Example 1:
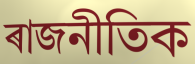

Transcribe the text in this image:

ৰাজনীতিক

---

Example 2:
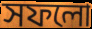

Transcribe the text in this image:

সফলো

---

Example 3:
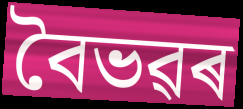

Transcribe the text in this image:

বৈভৱৰ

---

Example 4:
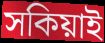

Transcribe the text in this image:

সকিয়াই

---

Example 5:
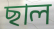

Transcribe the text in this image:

ছাল